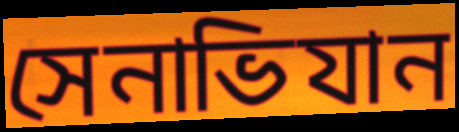
সেনাভিযান